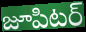
జూపిటర్